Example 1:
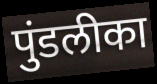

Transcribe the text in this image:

पुंडलीका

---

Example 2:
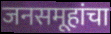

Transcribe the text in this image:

जनसमूहांचा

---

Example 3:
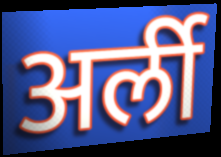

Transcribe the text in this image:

अर्ली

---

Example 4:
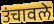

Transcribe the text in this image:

उंचावले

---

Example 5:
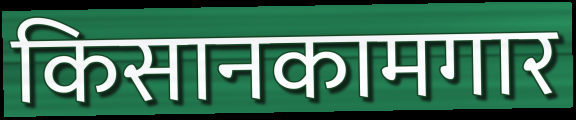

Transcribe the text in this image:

किसानकामगार